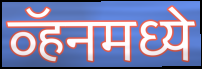
व्हॅनमध्ये